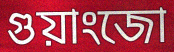
গুয়াংজো